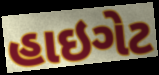
હાઇગેટ